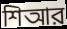
শিআর